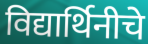
विद्यार्थिनीचे